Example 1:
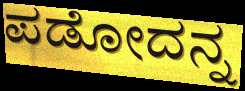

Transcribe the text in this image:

ಪಡೋದನ್ನ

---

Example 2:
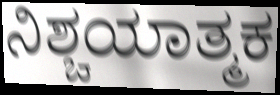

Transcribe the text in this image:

ನಿಶ್ಚಯಾತ್ಮಕ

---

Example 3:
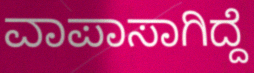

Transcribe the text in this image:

ವಾಪಾಸಾಗಿದ್ದೆ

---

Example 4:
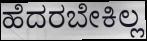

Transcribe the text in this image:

ಹೆದರಬೇಕಿಲ್ಲ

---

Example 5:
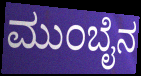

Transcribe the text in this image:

ಮುಂಬೈನ